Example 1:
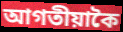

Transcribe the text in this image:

আগতীয়াকৈ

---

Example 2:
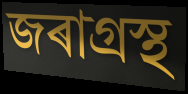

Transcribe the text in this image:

জৰাগ্ৰস্থ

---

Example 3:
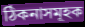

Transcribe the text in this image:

ঠিকনাসমূহক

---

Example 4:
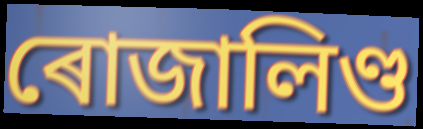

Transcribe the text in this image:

ৰোজালিণ্ড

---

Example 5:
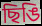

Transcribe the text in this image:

ছিঙি